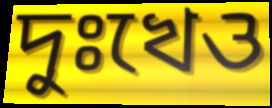
দুঃখেও